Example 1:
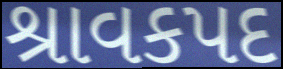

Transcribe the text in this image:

શ્રાવકપદ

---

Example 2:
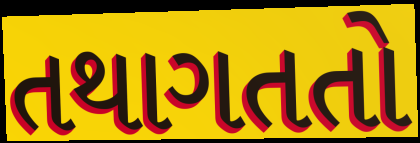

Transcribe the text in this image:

તથાગતતો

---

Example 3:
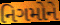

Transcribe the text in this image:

નિગમોને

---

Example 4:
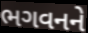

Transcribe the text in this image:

ભગવનને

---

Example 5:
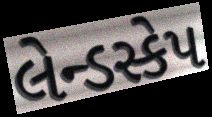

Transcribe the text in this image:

લેન્ડસ્કેપ